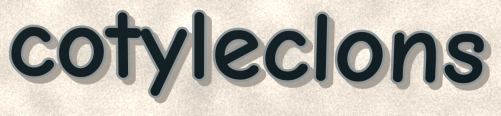
cotyleclons